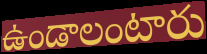
ఉండాలంటారు